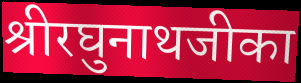
श्रीरघुनाथजीका